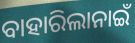
ବାହାରିଲାନାଇଁ